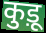
कुड़ू